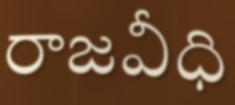
రాజవీధి